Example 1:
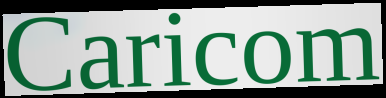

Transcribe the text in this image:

Caricom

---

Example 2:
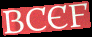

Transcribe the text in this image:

BCEF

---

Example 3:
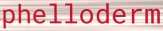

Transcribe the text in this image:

phelloderm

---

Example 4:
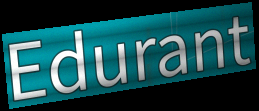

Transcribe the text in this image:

Edurant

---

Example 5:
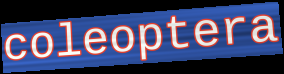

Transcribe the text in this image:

coleoptera